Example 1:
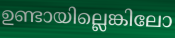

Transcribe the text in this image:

ഉണ്ടായില്ലെങ്കിലോ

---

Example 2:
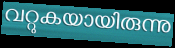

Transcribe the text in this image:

വറ്റുകയായിരുന്നു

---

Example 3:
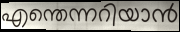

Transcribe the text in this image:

എന്തെന്നറിയാൻ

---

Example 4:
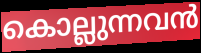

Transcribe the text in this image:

കൊല്ലുന്നവൻ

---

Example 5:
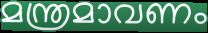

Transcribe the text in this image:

മന്ത്രമാവണം